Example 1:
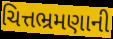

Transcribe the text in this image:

ચિત્તભ્રમણાની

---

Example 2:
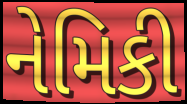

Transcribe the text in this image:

નેમિકી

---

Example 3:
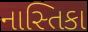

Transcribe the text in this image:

નાસ્તિકા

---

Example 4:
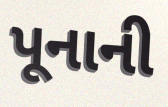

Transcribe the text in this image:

પૂનાની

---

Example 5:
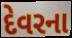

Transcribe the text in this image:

દેવરના